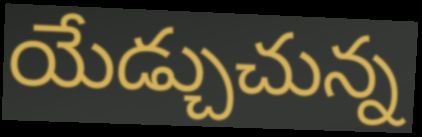
యేడ్చుచున్న